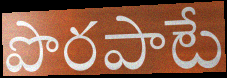
పొరపాటే